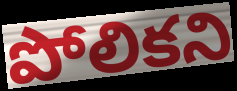
పోలికని